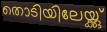
തൊടിയിലേയ്ക്കു്